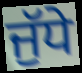
ਜੁੱਧੇ